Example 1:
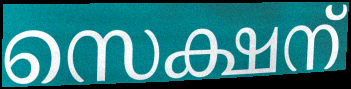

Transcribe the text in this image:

സെക്ഷന്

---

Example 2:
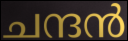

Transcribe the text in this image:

ചന്ദൻ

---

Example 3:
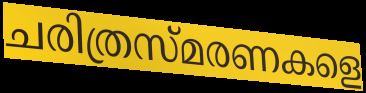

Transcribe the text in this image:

ചരിത്രസ്മരണകളെ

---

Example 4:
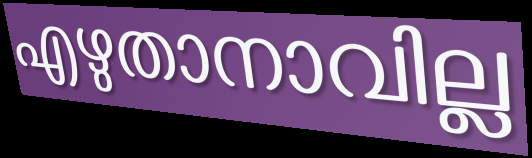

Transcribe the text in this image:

എഴുതാനാവില്ല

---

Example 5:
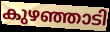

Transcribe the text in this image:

കുഴഞ്ഞാടി